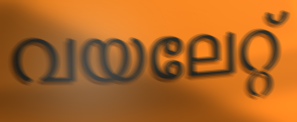
വയലേറ്റ്